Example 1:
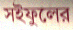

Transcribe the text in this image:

সইফুলের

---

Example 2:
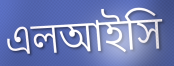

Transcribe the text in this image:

এলআইসি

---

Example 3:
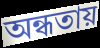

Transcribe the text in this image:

অন্ধতায়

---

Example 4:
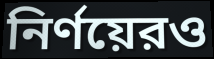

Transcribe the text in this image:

নির্ণয়েরও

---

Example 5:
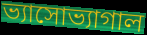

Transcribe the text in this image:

ভ্যাসোভ্যাগাল